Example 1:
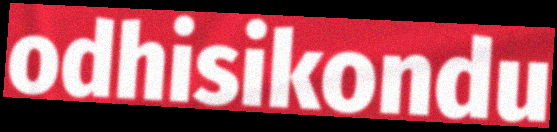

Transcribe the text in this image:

odhisikondu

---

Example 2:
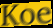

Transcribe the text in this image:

Koe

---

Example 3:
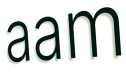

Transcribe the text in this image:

aam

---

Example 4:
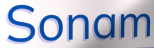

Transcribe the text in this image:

Sonam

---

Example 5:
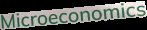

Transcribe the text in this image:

Microeconomics